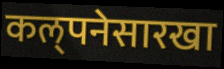
कल्पनेसारखा